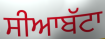
ਸੀਆਬੱਟਾ